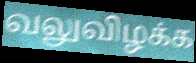
வலுவிழக்க